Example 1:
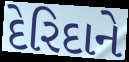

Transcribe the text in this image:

દેરિદાને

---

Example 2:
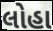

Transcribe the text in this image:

લોહા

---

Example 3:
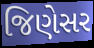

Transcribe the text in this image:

જિણેસર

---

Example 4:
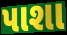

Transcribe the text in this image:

પાશા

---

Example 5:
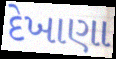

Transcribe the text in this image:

દેખાણા